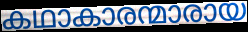
കഥാകാരന്മാരായ